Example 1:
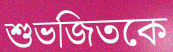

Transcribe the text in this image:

শুভজিতকে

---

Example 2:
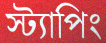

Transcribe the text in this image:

স্ট্যাপিং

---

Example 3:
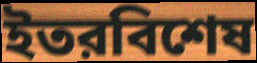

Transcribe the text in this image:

ইতরবিশেষ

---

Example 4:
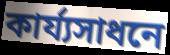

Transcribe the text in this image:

কার্য্যসাধনে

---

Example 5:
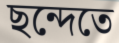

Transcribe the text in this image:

ছন্দেতে